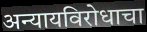
अन्यायविरोधाचा